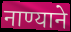
नाण्याने